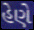
હેણે